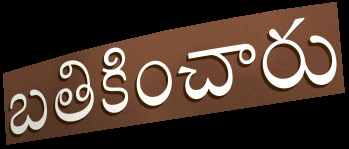
బతికించారు